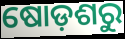
ଷୋଡ଼ଶରୁ